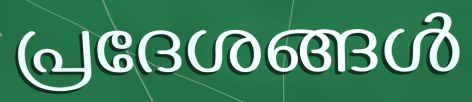
പ്രദേശങ്ങൾ